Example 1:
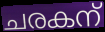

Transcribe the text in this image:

ചരകന്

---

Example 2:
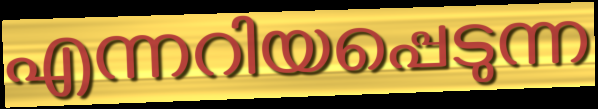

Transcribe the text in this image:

എന്നറിയപ്പെടുന്ന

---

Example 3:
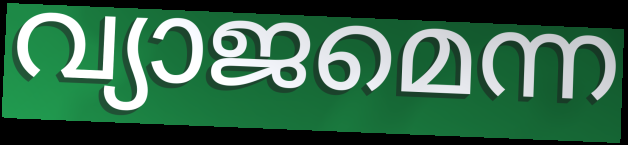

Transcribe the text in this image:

വ്യാജമെന്ന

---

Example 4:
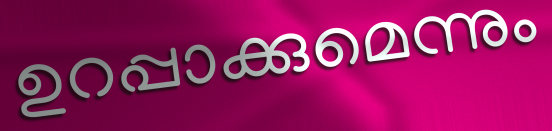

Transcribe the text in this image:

ഉറപ്പാക്കുമെന്നും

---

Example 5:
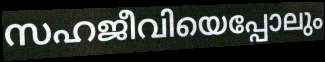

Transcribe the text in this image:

സഹജീവിയെപ്പോലും